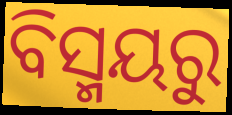
ବିସ୍ମୟରୁ